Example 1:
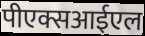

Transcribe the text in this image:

पीएक्सआईएल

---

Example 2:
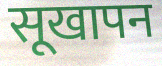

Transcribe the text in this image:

सूखापन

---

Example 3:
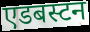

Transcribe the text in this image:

एडबस्टन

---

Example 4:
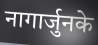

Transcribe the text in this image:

नागार्जुनके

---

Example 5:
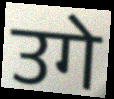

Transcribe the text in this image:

उगे